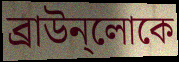
ব্রাউন্লোকে